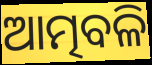
ଆତ୍ମବଳି